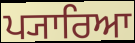
ਪ੍ਯਾਰਿਆ